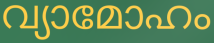
വ്യാമോഹം